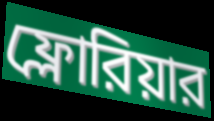
ফ্লোরিয়ার